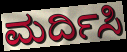
ಮರ್ದಿಸಿ